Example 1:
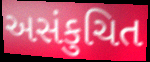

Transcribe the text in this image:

અસંકુચિત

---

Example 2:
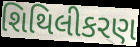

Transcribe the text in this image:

શિથિલીકરણ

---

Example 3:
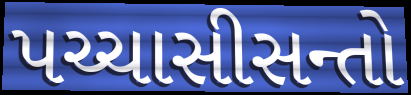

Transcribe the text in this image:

પચ્ચાસીસન્તો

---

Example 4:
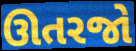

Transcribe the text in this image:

ઊતરજો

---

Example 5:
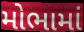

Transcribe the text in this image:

મોભામાં